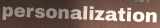
personalization